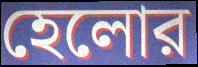
হেলোর